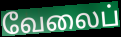
வேலைப்